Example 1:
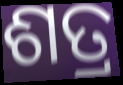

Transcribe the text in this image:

ଶତ୍ର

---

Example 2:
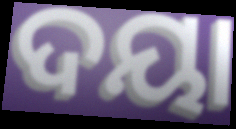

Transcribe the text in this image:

ଦୟା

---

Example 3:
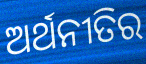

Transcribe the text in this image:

ଅର୍ଥନୀତିର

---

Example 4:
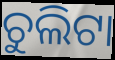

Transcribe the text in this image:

ଚୁଲିଟା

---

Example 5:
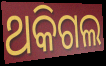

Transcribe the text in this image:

ଥକିଗଲ